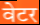
वेटर